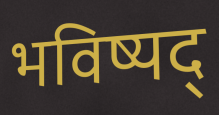
भविष्यद्